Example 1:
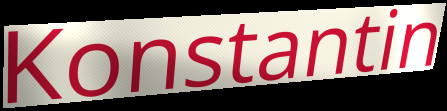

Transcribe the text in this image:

Konstantin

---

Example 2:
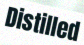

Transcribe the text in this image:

Distilled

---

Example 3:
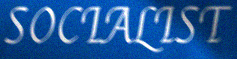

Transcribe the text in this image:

SOCIALIST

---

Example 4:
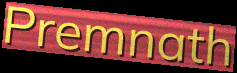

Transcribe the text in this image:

Premnath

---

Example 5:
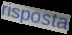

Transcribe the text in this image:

risposta